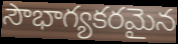
సౌభాగ్యకరమైన